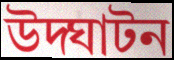
উদ্ঘাটন